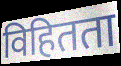
विहितता